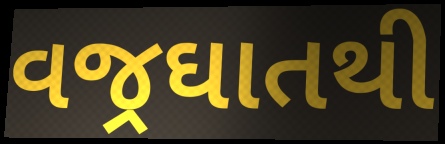
વજ્રઘાતથી